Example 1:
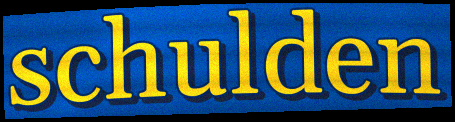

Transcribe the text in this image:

schulden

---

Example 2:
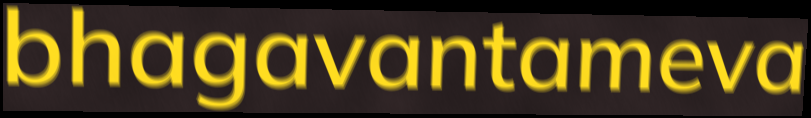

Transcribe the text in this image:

bhagavantameva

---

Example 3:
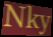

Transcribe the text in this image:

Nky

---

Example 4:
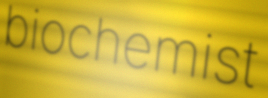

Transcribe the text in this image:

biochemist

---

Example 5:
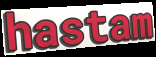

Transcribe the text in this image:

hastam